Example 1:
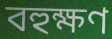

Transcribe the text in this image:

বহুক্ষণ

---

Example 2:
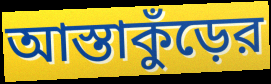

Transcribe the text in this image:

আস্তাকুঁড়ের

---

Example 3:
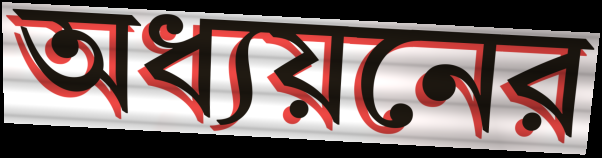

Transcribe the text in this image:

অধ্যয়নের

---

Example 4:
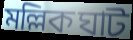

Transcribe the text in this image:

মল্লিকঘাট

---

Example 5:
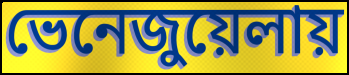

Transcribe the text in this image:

ভেনেজুয়েলায়